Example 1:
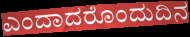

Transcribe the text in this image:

ಎಂದಾದರೊಂದುದಿನ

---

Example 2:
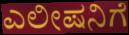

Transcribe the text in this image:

ಎಲೀಷನಿಗೆ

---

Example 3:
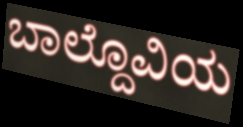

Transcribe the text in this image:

ಬಾಲ್ದೊವಿಯ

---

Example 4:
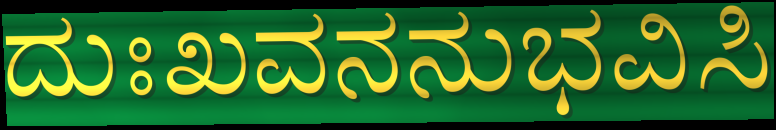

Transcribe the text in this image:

ದುಃಖವನನುಭವಿಸಿ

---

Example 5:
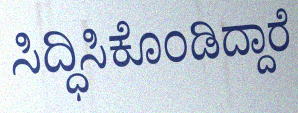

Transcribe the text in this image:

ಸಿದ್ಧಿಸಿಕೊಂಡಿದ್ದಾರೆ